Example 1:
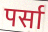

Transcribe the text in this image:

पर्सा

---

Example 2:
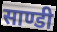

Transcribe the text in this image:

साण्डी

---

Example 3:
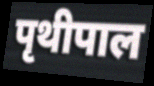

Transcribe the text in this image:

पृथीपाल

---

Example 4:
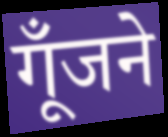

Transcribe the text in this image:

गूँजने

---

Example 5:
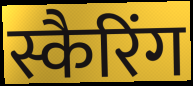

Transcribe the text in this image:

स्कैरिंग